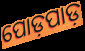
ପୋଡ଼ପାଡ଼